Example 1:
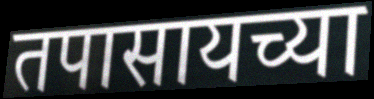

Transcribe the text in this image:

तपासायच्या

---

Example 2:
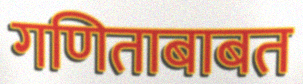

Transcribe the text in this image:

गणिताबाबत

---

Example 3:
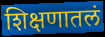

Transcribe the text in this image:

शिक्षणातलं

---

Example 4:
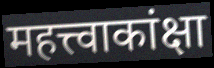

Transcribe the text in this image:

महत्त्वाकांक्षा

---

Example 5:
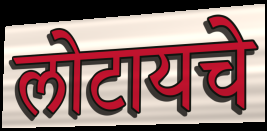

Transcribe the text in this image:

लोटायचे